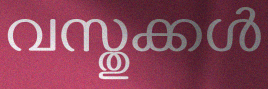
വസ്തുക്കൾ